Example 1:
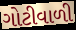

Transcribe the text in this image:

ગોટીવાળી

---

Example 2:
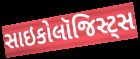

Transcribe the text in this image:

સાઇકોલૉજિસ્ટ્સ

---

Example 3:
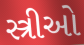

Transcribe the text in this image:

સ્ત્રીઓ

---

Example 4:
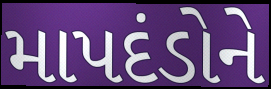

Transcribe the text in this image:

માપદંડોને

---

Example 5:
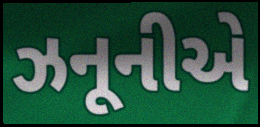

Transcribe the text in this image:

ઝનૂનીએ